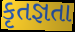
કૃતજ્ઞતા